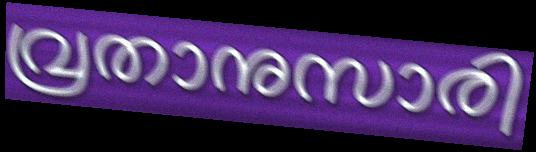
വ്രതാനുസാരി